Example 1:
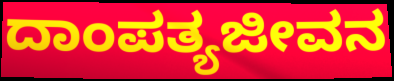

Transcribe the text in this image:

ದಾಂಪತ್ಯಜೀವನ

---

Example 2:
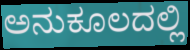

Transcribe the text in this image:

ಅನುಕೂಲದಲ್ಲಿ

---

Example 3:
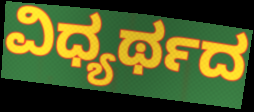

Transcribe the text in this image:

ವಿಧ್ಯರ್ಥದ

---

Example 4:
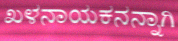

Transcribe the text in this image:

ಖಳನಾಯಕನನ್ನಾಗಿ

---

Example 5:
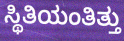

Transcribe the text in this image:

ಸ್ಥಿತಿಯಂತಿತ್ತು